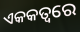
ଏକକତ୍ୱରେ